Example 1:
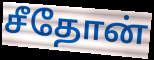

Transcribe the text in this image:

சீதோன்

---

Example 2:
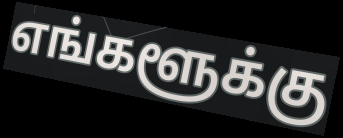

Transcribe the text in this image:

எங்களூக்கு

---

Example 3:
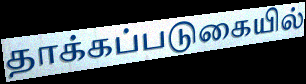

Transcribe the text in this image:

தாக்கப்படுகையில்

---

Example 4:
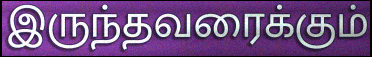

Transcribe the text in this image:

இருந்தவரைக்கும்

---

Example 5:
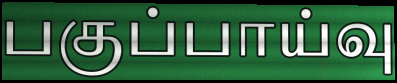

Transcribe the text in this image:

பகுப்பாய்வு